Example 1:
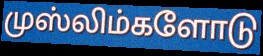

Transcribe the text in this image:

முஸ்லிம்களோடு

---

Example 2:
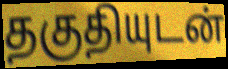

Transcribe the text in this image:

தகுதியுடன்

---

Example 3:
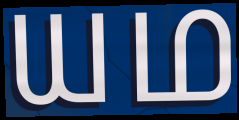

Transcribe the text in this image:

யம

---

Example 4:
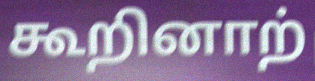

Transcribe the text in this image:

கூறினாற்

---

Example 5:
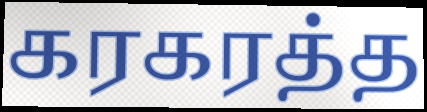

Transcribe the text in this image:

கரகரத்த